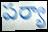
పర్యా